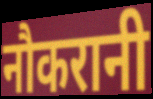
नौकरानी